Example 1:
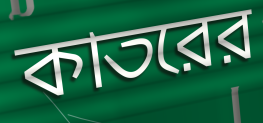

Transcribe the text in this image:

কাতরের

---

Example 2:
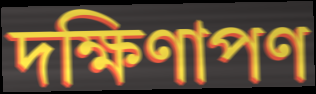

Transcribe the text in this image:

দক্ষিণাপণ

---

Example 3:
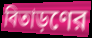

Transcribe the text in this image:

বিতাড়ণের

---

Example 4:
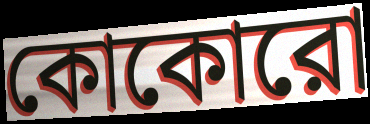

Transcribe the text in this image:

কোকোরো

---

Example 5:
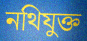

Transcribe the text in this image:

নথিযুক্ত